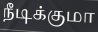
நீடிக்குமா